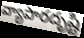
వ్యాపారదృష్టి